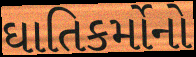
ઘાતિકર્મોનો